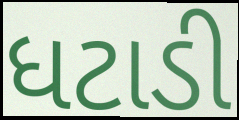
ધટાડી